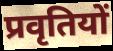
प्रवृतियों